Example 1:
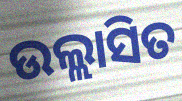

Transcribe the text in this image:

ଉଲ୍ଲାସିତ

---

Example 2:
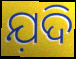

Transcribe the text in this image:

ଯ଼ଦି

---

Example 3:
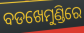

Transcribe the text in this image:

ବଡଖେମୁଣ୍ଡିରେ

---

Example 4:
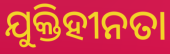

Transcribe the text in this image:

ଯୁକ୍ତିହୀନତା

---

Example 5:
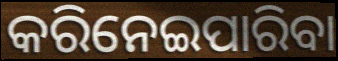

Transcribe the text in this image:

କରିନେଇପାରିବା